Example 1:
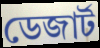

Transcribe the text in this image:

ডেজার্ট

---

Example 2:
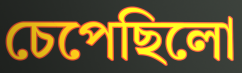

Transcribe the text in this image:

চেপেছিলো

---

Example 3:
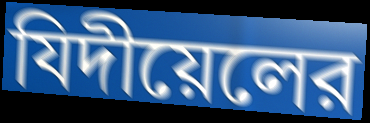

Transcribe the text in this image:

যিদীয়েলের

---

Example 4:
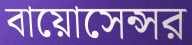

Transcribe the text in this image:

বায়োসেন্সর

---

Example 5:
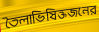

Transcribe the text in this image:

তৈলাভিষিক্তজনের